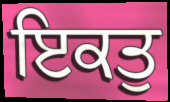
ਇਕਤੁ